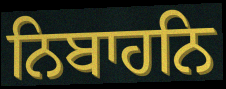
ਨਿਬਾਹਨਿ